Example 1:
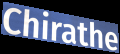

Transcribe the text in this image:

Chirathe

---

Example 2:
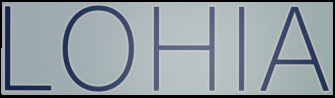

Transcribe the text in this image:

LOHIA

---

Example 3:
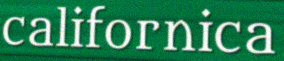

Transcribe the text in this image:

californica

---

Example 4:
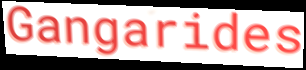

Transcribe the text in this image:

Gangarides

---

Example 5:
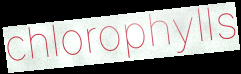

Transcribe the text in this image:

chlorophylls